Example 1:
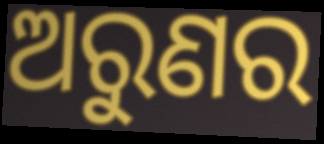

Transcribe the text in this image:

ଅରୁଣର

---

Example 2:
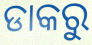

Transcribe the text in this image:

ଡାକରୁ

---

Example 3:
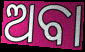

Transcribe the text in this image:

ଅବା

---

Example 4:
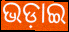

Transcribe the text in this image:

ଭଡ଼ାଇ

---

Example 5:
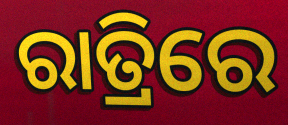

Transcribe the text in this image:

ରାତ୍ରିରେ